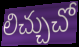
లిచ్చుచో